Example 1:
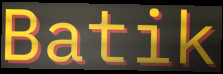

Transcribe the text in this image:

Batik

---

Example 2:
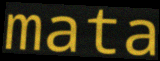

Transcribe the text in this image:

mata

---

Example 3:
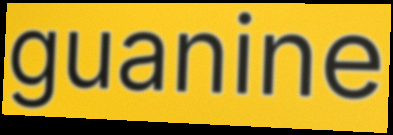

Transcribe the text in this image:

guanine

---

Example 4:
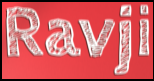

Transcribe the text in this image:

Ravji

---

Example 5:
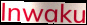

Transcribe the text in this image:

Inwaku